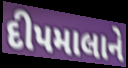
દીપમાલાને